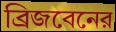
ব্রিজবেনের